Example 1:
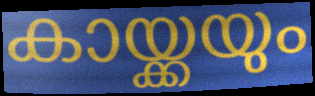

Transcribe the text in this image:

കായ്ക്കയും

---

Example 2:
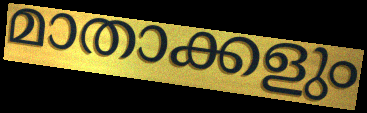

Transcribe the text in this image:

മാതാക്കളും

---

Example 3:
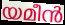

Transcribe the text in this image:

യമീൻ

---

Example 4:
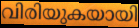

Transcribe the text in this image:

വിരിയുകയായി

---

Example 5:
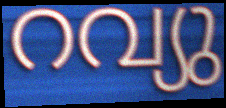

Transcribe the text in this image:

റവ്യു